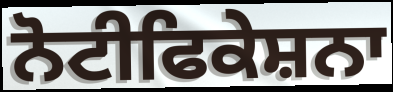
ਨੋਟੀਫਿਕੇਸ਼ਨਾ